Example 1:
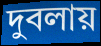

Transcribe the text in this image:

দুবলায়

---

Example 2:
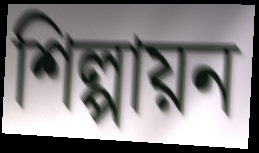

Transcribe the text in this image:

শিল্পায়ন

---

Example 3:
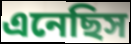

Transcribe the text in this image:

এনেছিস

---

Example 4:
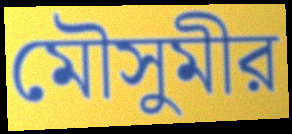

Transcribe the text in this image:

মৌসুমীর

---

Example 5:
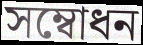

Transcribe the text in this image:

সম্বোধন